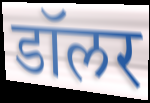
डॉलर